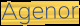
Agenor